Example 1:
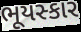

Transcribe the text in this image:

ભૂયસ્કાર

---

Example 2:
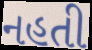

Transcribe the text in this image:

નહતી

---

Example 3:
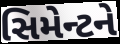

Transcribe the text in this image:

સિમેન્ટને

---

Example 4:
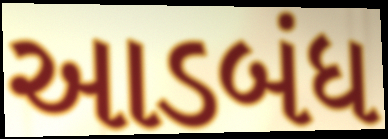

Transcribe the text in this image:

આડબંધ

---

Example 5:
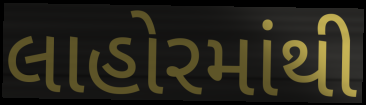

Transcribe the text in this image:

લાહોરમાંથી